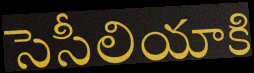
సెసీలియాకి